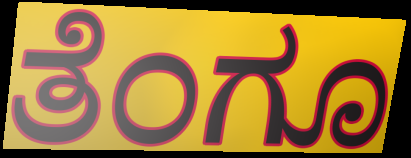
ತೆಂಗೂ